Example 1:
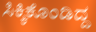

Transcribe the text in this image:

ಸಿಕ್ಕಿಕೊಂಡಿದ್ದ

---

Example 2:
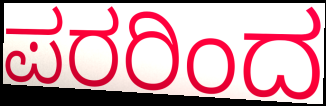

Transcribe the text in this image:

ಪರರಿಂದ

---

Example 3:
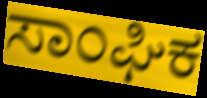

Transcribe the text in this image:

ಸಾಂಘಿಕ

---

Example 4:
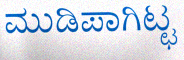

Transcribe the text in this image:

ಮುಡಿಪಾಗಿಟ್ಟ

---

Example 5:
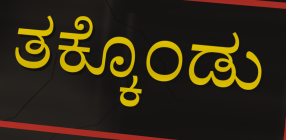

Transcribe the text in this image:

ತಕ್ಕೊಂಡು